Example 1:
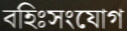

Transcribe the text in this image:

বহিঃসংযোগ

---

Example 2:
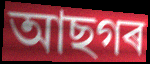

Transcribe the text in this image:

আছগৰ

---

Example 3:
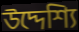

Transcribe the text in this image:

উদ্দেশ্যি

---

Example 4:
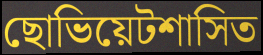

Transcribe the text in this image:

ছোভিয়েটশাসিত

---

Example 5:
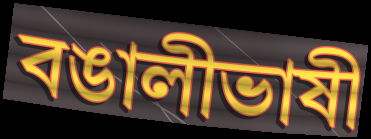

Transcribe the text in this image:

বঙালীভাষী